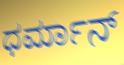
ಧರ್ಮಾನ್